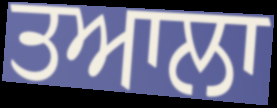
ਤਆਲਾ